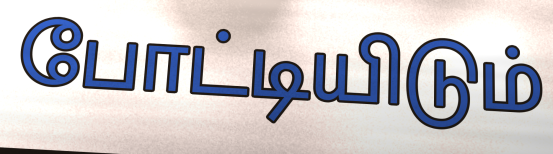
போட்டியிடும்